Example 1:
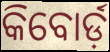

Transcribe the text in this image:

କିବୋର୍ଡ଼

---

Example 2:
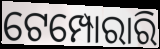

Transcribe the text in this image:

ଟେମ୍ପୋରାରି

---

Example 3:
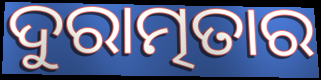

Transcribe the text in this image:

ଦୁରାତ୍ମତାର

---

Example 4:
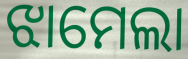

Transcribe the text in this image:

ଝାମେଲା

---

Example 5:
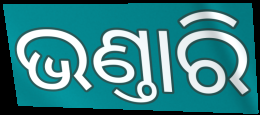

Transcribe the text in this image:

ଭଣ୍ତାରି